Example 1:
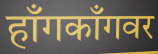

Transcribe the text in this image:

हाँगकाँगवर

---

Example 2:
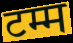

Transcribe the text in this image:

टम्म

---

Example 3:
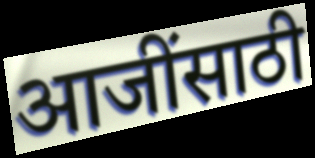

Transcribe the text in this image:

आजींसाठी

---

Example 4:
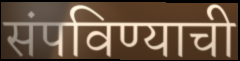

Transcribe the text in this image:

संपविण्याची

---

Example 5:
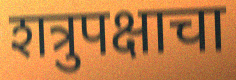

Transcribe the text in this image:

शत्रुपक्षाचा